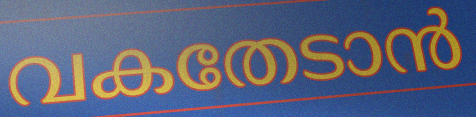
വകതേടാൻ